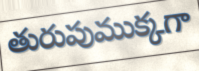
తురుపుముక్కగా